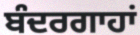
ਬੰਦਰਗਾਹਾਂ